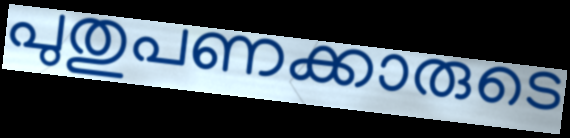
പുതുപണക്കാരുടെ